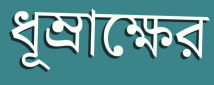
ধূম্রাক্ষের